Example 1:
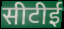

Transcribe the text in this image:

सीटीई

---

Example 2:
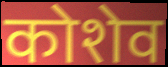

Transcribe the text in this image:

कोशेव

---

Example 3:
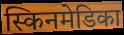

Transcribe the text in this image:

स्किनमेडिका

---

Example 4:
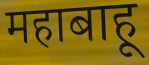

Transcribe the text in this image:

महाबाहू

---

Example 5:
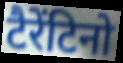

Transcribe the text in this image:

टैरेंटिनो